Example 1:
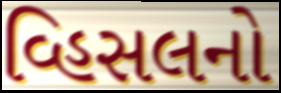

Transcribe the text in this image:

વ્હિસલનો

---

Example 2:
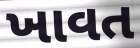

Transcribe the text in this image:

ખાવત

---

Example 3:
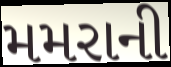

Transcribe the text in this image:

મમરાની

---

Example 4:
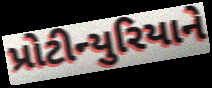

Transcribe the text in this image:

પ્રોટીન્યુરિયાને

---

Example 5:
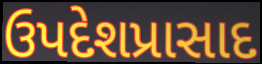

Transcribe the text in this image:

ઉપદેશપ્રાસાદ